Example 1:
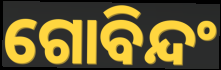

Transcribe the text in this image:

ଗୋବିନ୍ଦଂ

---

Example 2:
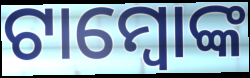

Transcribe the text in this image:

ଟାମ୍ବୋଙ୍କ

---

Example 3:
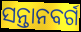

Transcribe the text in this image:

ସନ୍ତାନବର୍ଗ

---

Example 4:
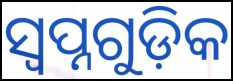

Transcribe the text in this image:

ସ୍ୱପ୍ନଗୁଡ଼ିକ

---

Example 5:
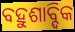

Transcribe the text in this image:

ବହୁଶାବ୍ଦିକ